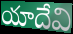
యాదేవి